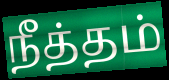
நீத்தம்